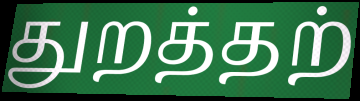
துறத்தற்